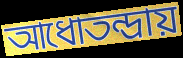
আধোতন্দ্রায়